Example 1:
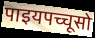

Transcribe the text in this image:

पाइयपच्चूसो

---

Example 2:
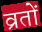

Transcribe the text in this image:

व्रतों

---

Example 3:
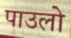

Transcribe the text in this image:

पाउलो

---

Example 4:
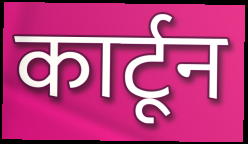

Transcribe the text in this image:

कार्टून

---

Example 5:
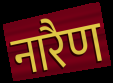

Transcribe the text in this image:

नारैण